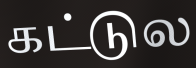
கட்டுல